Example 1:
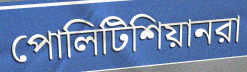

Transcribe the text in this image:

পোলিটিশিয়ানরা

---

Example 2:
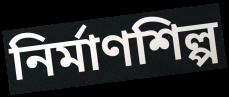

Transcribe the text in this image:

নির্মাণশিল্প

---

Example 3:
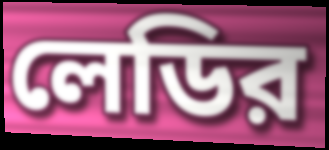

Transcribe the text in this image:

লেডির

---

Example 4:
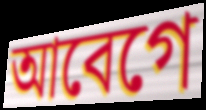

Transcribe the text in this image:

আবেগে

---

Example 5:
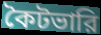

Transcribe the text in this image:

কৈটভারি